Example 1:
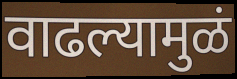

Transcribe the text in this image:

वाढल्यामुळं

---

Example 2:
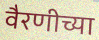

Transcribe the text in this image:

वैरणीच्या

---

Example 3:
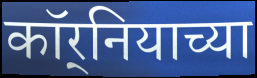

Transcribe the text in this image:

कॉर्नियाच्या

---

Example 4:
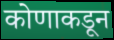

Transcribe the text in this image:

कोणाकडून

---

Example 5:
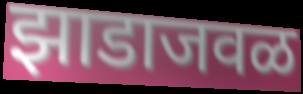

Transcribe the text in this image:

झाडाजवळ